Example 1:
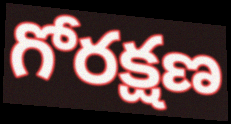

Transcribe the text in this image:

గోరక్షణ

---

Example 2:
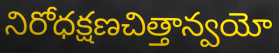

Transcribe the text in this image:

నిరోధక్షణచిత్తాన్వయో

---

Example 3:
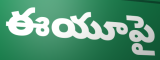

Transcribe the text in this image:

ఈయూపై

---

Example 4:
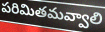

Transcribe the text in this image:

పరిమితమవ్వాలి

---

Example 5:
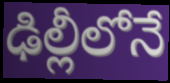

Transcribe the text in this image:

ఢిల్లీలోనే